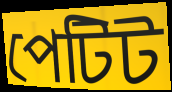
পেটিট